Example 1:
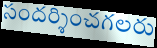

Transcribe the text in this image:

సందర్శించగలరు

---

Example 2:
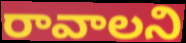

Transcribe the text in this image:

రావాలని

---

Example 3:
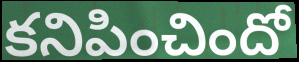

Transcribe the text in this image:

కనిపించిందో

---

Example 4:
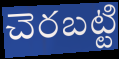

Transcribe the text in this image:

చెరబట్టి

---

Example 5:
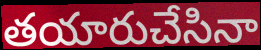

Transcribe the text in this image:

తయారుచేసినా